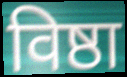
विष्ठा